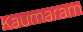
Kaumaram